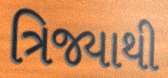
ત્રિજ્યાથી